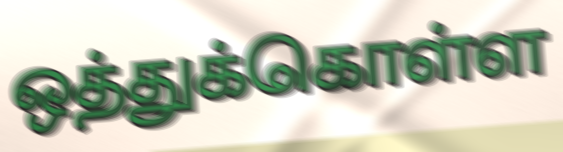
ஒத்துக்கொள்ள